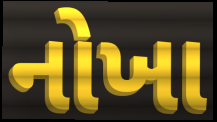
નોખા